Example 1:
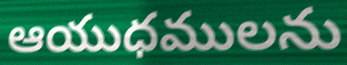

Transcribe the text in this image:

ఆయుధములను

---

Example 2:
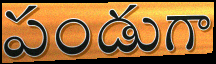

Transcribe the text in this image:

పండుగా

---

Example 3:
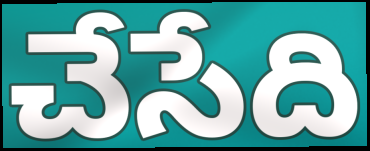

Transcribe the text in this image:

చేసేది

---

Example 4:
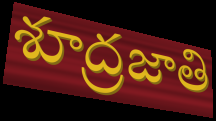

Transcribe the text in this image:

శూద్రజాతి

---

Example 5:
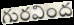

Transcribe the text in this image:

గురవింద